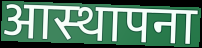
आस्थापना